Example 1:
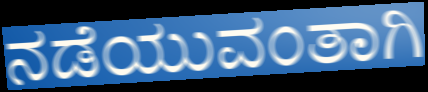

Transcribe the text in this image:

ನಡೆಯುವಂತಾಗಿ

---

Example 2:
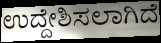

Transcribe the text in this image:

ಉದ್ದೇಶಿಸಲಾಗಿದೆ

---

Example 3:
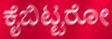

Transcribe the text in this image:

ಕೈಬಿಟ್ಟರೋ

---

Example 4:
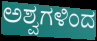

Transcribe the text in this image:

ಅಶ್ವಗಳಿಂದ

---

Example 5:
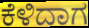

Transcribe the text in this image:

ಕೆಳಿದಾಗ